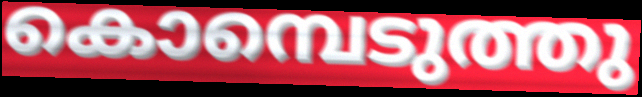
കൊമ്പെടുത്തു